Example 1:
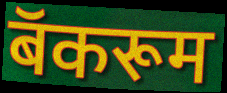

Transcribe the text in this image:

बॅकरूम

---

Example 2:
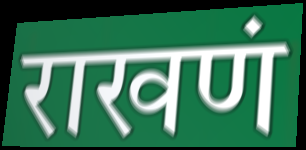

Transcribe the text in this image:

राखणं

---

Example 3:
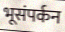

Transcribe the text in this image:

भूसंपर्कन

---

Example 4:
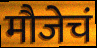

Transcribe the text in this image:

मौजेचं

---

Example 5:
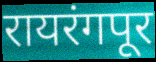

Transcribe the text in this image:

रायरंगपूर